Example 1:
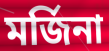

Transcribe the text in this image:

মর্জিনা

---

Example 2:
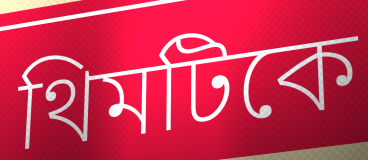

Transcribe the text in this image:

থিমটিকে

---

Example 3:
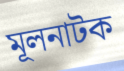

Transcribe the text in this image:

মূলনাটক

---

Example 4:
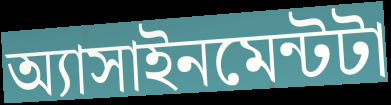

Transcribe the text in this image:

অ্যাসাইনমেন্টটা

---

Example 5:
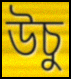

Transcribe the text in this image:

উচু